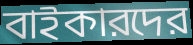
বাইকারদের